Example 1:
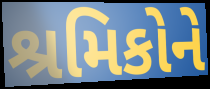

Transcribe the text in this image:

શ્રમિકોને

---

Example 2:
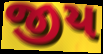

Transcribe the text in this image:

જીય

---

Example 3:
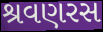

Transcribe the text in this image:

શ્રવણરસ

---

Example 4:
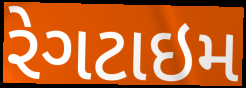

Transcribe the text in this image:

રેગટાઇમ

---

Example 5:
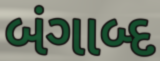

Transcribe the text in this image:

બંગાબ્દ